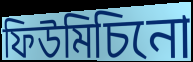
ফিউমিচিনো